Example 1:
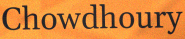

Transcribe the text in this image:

Chowdhoury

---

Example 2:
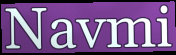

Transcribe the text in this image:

Navmi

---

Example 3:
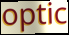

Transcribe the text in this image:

optic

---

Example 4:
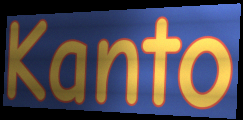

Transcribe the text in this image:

Kanto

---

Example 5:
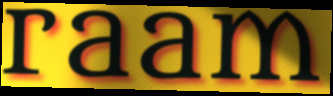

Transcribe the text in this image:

raam